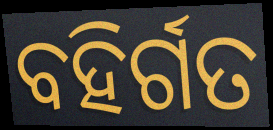
ବହିର୍ଗତ